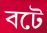
বটে